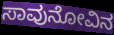
ಸಾವುನೋವಿನ